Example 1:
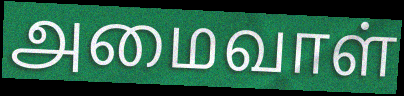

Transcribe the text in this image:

அமைவாள்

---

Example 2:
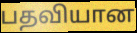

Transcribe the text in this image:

பதவியான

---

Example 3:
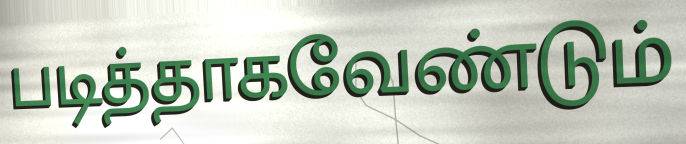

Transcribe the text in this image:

படித்தாகவேண்டும்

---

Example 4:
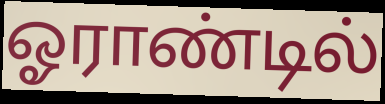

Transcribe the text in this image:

ஓராண்டில்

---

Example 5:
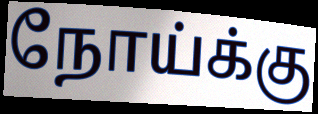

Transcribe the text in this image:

நோய்க்கு